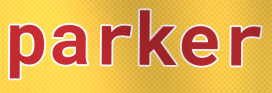
parker